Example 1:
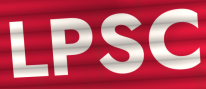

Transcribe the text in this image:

LPSC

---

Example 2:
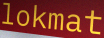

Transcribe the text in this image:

lokmat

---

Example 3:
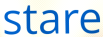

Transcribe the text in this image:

stare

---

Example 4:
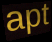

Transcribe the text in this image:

apt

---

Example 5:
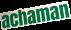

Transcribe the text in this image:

achaman